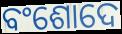
ବଂଶୋଦେ